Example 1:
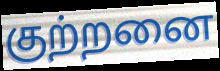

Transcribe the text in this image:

குற்றனை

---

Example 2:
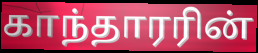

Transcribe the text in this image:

காந்தாரரின்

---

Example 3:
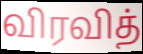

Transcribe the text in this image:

விரவித்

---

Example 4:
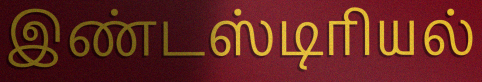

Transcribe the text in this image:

இண்டஸ்டிரியல்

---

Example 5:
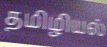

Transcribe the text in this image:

தமிழியல்